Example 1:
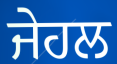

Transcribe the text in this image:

ਜੇਹਲ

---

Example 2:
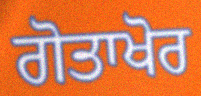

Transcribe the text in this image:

ਗੋਤਾਖੋਰ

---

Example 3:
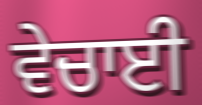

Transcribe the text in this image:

ਵੇਚਾਈ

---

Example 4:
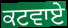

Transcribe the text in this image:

ਕਟਵਾਏ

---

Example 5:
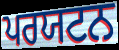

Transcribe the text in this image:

ਪਰਯਟਨ